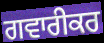
ਗਵਾਰੀਕਰ